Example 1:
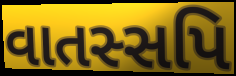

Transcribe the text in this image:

વાતસ્સપિ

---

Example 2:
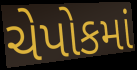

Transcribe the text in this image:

ચેપોકમાં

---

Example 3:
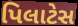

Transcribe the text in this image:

પિલાટેસ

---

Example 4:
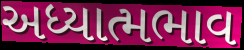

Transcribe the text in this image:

અધ્યાત્મભાવ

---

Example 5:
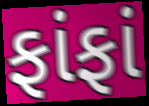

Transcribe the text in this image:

ફાંફાં